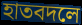
হাতবদলে